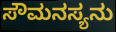
ಸೌಮನಸ್ಯನು